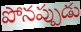
పోనప్పుడు